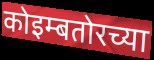
कोइम्बतोरच्या